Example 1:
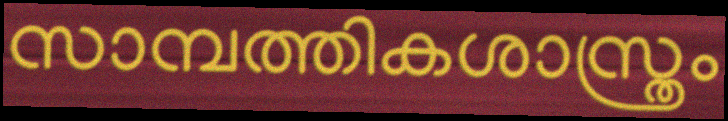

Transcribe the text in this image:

സാമ്പത്തികശാസ്ത്രം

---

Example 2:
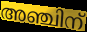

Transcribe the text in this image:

അഞ്ചിന്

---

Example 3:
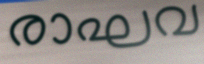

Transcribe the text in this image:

രാഘവ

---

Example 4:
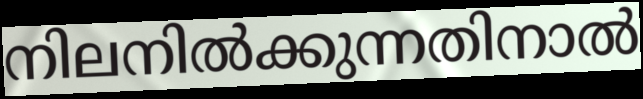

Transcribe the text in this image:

നിലനിൽക്കുന്നതിനാൽ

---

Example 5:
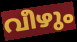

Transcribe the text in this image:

വീഴും